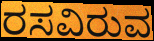
ರಸವಿರುವ